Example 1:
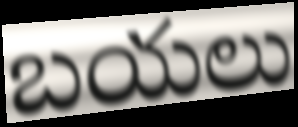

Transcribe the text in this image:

బయలు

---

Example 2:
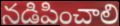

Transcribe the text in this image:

నడిపించాలి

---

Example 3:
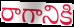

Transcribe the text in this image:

రాగానికి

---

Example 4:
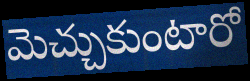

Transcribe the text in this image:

మెచ్చుకుంటారో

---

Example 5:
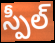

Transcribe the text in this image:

స్పీల్